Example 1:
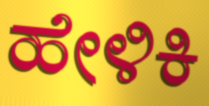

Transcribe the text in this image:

ಹೇಳಿಕಿ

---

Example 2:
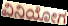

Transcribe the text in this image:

ವಿನಿಯೋಗ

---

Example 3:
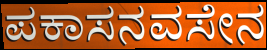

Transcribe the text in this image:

ಪಕಾಸನವಸೇನ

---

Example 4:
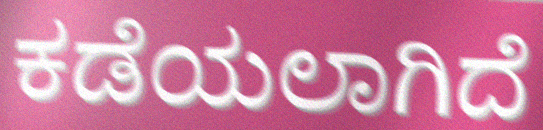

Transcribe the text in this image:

ಕಡೆಯಲಾಗಿದೆ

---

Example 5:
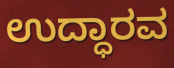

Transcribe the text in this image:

ಉದ್ಧಾರವ